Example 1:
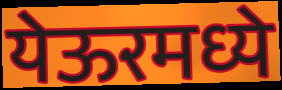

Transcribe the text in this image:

येऊरमध्ये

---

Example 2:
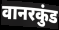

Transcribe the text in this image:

वानरकुंड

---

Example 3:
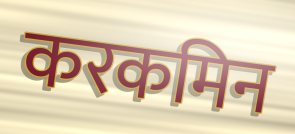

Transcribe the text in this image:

करकमिन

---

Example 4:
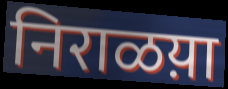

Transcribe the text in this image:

निराळय़ा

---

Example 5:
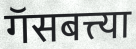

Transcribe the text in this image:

गॅसबत्त्या